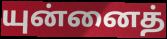
யுன்னைத்